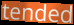
tended